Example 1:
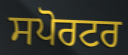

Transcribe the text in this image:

ਸਪੋਰਟਰ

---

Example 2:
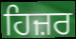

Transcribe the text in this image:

ਹਿਜ਼ਰ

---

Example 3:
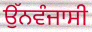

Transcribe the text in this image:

ਉੱਨਵੰਜਾਸੀ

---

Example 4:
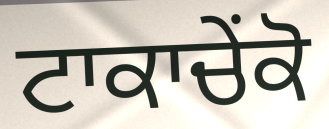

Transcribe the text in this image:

ਟਾਕਾਚੇਂਕੋ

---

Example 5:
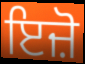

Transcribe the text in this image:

ਇਜ਼ੋ